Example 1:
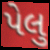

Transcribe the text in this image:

પેલુ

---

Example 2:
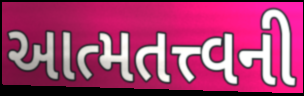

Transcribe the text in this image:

આત્મતત્ત્વની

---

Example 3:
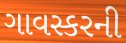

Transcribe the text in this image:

ગાવસ્કરની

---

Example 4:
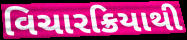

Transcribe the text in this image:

વિચારક્રિયાથી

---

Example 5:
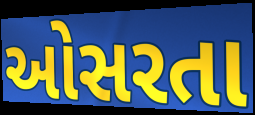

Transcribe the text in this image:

ઓસરતા